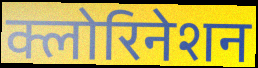
क्लोरिनेशन